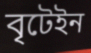
বৃটেইন